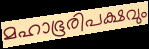
മഹാഭൂരിപക്ഷവും